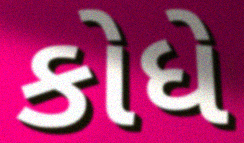
કોધે